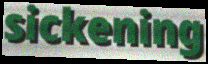
sickening